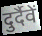
दुर्दैवें